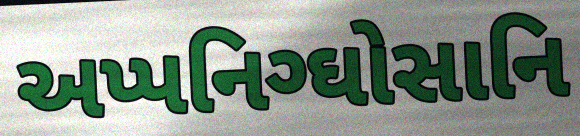
અપ્પનિગ્ઘોસાનિ